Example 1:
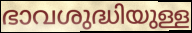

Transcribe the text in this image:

ഭാവശുദ്ധിയുള്ള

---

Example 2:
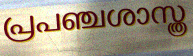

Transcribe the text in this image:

പ്രപഞ്ചശാസ്ത്ര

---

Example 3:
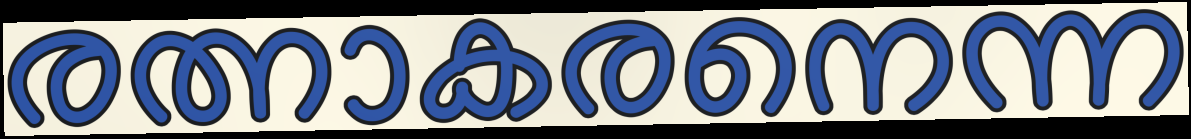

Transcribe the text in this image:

രത്നാകരനെന്ന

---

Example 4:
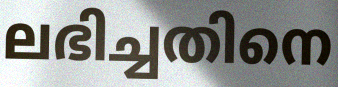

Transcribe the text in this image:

ലഭിച്ചതിനെ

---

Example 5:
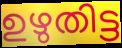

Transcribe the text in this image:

ഉഴുതിട്ട